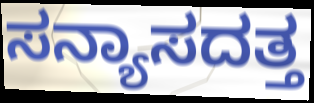
ಸನ್ಯಾಸದತ್ತ